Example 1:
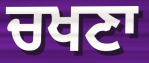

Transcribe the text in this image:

ਚਖਣਾ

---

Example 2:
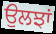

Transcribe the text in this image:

ਉਲਝਾਂ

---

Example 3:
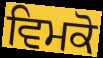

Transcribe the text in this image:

ਵਿਮਕੋ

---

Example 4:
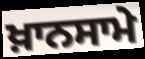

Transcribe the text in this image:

ਖ਼ਾਨਸਾਮੇ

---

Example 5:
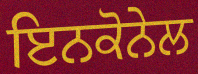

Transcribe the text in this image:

ਇਨਕੋਨੇਲ